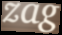
zag